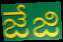
జేజి